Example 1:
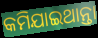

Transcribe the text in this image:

କମିଯାଇଥାନ୍ତା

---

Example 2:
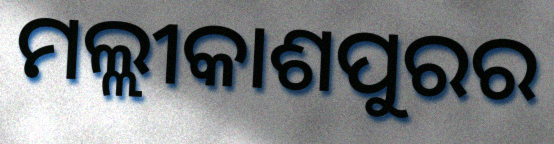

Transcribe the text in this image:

ମଲ୍ଲୀକାଶପୁରର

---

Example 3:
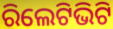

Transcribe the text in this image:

ରିଲେଟିଭିଟି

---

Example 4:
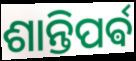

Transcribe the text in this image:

ଶାନ୍ତିପର୍ଵ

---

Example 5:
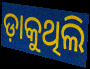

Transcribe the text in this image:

ଡ଼ାକୁଥିଲି